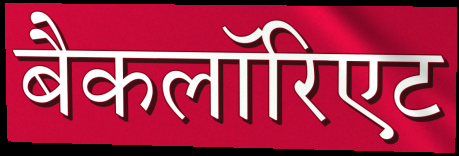
बैकलॉरिएट